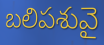
బలిపశువై